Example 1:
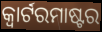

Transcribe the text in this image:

କ୍ୱାର୍ଟରମାଷ୍ଟର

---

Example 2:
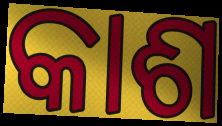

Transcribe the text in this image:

କାଶ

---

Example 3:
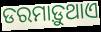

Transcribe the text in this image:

ଡରମାଡ଼ୁଥାଏ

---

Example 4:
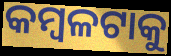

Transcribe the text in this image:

କମ୍ବଳଟାକୁ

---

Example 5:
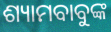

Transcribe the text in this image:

ଶ୍ୟାମବାବୁଙ୍କ